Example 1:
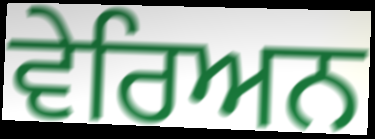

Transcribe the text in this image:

ਵੇਰਿਅਨ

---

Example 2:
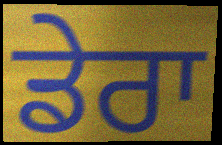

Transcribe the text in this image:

ਡੇਰਾ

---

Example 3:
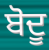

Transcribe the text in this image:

ਬੋਦੂ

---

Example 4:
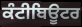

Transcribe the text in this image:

ਕੰਟੀਬਿਊਟਰ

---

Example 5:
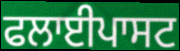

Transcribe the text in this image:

ਫਲਾਈਪਾਸਟ